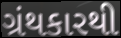
ગ્રંથકારથી